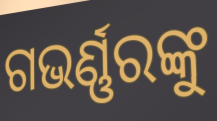
ଗଭର୍ଣ୍ଣରଙ୍କୁ